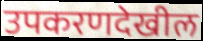
उपकरणदेखील